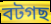
বটগছ